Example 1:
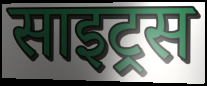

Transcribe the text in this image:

साइट्रस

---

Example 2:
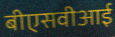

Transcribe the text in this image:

बीएसवीआई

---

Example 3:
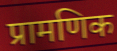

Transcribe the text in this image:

प्रामणिक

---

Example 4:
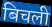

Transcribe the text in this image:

बिचली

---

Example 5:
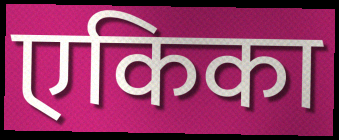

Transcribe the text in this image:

एकिका